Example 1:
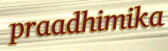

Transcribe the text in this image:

praadhimika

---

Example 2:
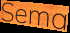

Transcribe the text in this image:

Sema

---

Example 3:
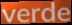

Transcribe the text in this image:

verde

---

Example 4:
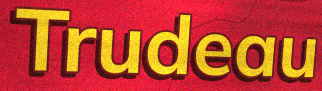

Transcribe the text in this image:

Trudeau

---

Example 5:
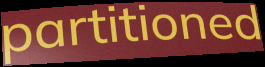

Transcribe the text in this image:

partitioned